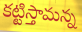
కట్టిస్తామన్న